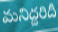
మనిద్దరిదీ